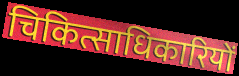
चिकित्साधिकारियों